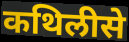
कथिलीसे